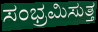
ಸಂಭ್ರಮಿಸುತ್ತ